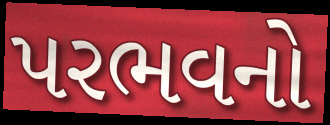
પરભવનો